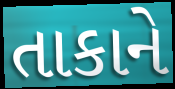
તાકાને